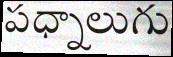
పధ్నాలుగు